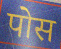
पोस